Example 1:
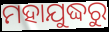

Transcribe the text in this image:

ମହାଯୁଦ୍ଧରୁ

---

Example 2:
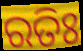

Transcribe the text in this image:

ରତିଃ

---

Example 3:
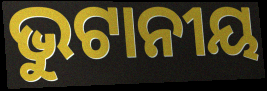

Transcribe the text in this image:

ଭୁଟାନୀୟ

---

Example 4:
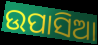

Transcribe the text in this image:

ଉପାସିଆ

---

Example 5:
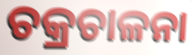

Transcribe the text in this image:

ଚକ୍ରଚାଳନା